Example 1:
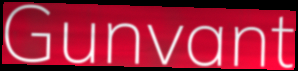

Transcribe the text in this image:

Gunvant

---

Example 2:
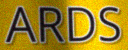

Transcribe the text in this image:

ARDS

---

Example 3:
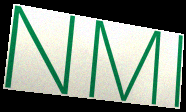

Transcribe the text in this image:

NMI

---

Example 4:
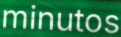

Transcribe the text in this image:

minutos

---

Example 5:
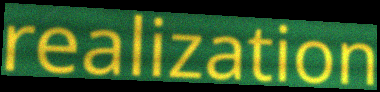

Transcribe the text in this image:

realization